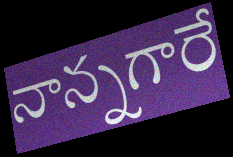
నాన్నగారే